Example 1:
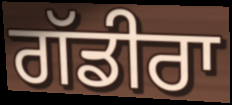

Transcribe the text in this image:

ਗੱਡੀਰਾ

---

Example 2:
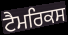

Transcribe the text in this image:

ਟੈਮਰਿਕਸ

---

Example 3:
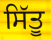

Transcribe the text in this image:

ਸਿੱਤੂ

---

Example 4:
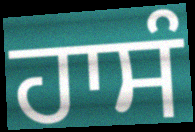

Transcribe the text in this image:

ਹਾਸੰ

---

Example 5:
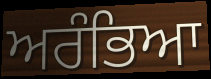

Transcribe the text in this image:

ਅਰੰਭਿਆ